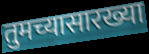
तुमच्यासारख्या